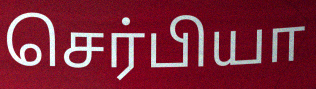
செர்பியா